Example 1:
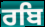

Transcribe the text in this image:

ਰਬਿ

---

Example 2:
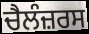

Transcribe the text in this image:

ਚੈਲੰਜ਼ਰਸ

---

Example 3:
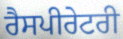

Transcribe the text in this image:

ਰੈਸਪੀਰੇਟਰੀ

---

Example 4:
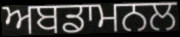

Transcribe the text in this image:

ਅਬਡਾਮਨਲ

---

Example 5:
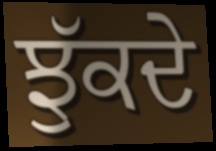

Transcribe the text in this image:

ਝੁੱਕਦੇ